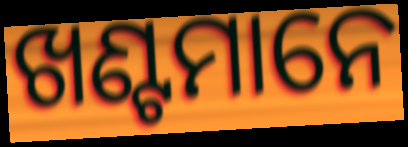
ଖଣ୍ଟମାନେ